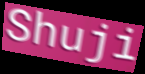
Shuji